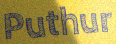
Puthur